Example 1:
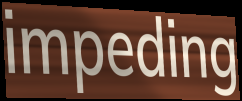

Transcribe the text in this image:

impeding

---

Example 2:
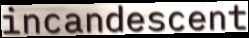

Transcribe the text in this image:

incandescent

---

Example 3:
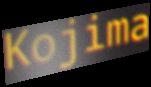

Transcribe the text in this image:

Kojima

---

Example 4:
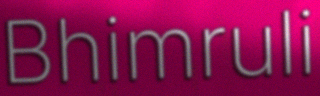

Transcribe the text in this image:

Bhimruli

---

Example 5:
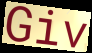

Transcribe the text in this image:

Giv